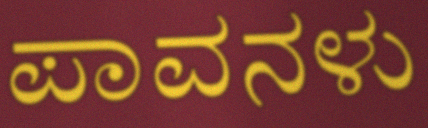
ಪಾವನಳು